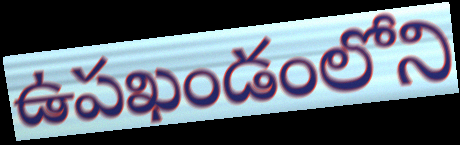
ఉపఖండంలోని